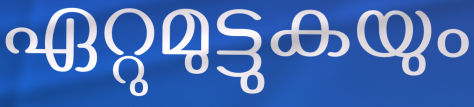
ഏറ്റുമുട്ടുകയും